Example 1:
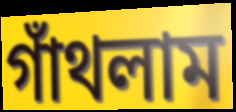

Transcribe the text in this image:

গাঁথলাম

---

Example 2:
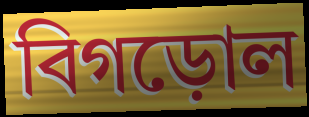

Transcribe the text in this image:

বিগড়োল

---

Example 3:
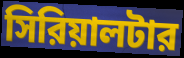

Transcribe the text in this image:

সিরিয়ালটার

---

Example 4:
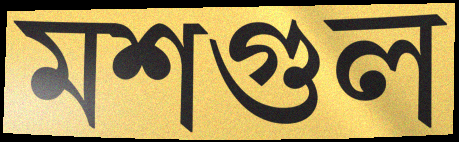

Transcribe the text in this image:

মশগুল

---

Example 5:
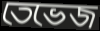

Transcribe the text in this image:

তেভেজ